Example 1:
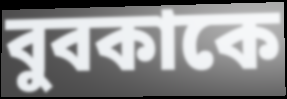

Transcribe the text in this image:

বুবকাকে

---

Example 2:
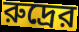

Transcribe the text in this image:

রুদ্রের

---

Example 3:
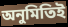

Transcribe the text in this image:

অনুমিতিই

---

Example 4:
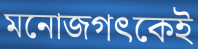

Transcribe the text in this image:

মনোজগৎকেই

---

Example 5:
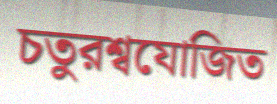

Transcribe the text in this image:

চতুরশ্বযোজিত